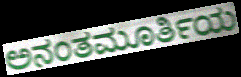
ಅನಂತಮೂರ್ತಿಯ